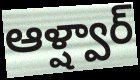
ఆళ్ష్వార్